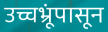
उच्चभ्रूंपासून